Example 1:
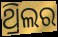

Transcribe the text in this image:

ଥ୍ରିଲର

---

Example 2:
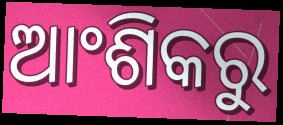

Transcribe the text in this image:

ଆଂଶିକରୁ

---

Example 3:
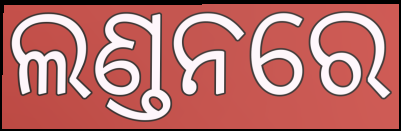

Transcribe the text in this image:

ଲଣ୍ଡନରେ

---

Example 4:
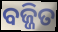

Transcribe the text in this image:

ବଜ୍ଜିତ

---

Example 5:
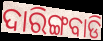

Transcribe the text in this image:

ଦାରିଙ୍ଗବାଡି